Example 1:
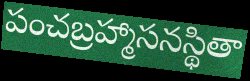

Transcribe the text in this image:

పంచబ్రహ్మాసనస్థితా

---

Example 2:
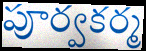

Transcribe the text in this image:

పూర్వకర్మ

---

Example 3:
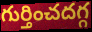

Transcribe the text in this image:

గుర్తించదగ్గ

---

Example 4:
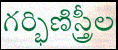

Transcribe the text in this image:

గర్భిణిస్త్రీల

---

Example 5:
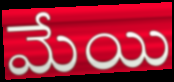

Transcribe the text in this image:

మేయి